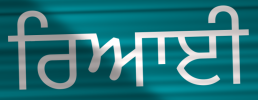
ਰਿਆਈ